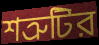
শত্রুটির